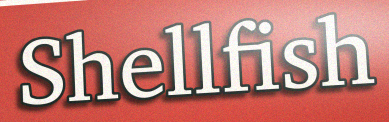
Shellfish